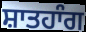
ਸ਼ਾਤਹਾੰਗ